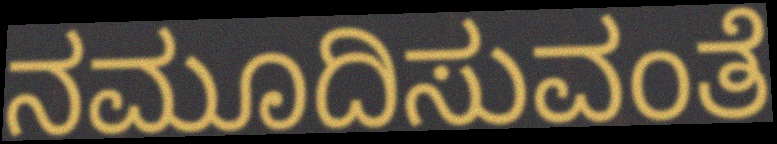
ನಮೂದಿಸುವಂತೆ